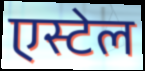
एस्टेल